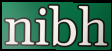
nibh